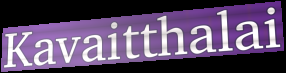
Kavaitthalai